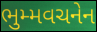
ભુમ્મવચનેન